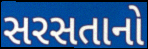
સરસતાનો